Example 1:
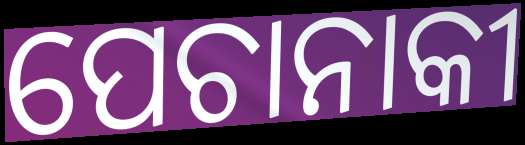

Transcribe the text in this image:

ପେଚାନାକୀ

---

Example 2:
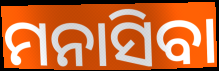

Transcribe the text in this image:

ମନାସିବା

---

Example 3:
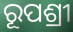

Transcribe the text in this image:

ରୂପଶ୍ରୀ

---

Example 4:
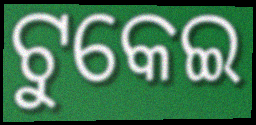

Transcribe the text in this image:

ଟୁକେଇ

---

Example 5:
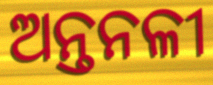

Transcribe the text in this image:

ଅନ୍ତନଳୀ